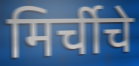
मिर्चीचे